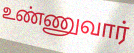
உண்ணுவார்